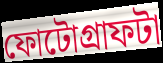
ফোটোগ্রাফটা